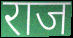
राज